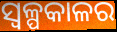
ସ୍ୱଳ୍ପକାଳର